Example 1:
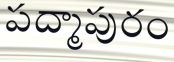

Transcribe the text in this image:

పద్మాపురం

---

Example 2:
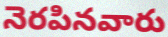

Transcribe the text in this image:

నెరపినవారు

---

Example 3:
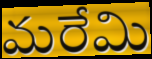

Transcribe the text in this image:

మరేమి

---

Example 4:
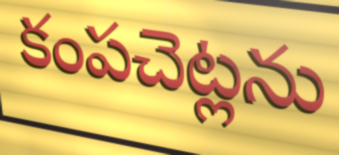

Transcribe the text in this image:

కంపచెట్లను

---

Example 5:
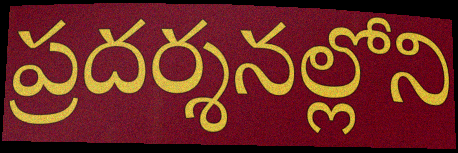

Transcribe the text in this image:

ప్రదర్శనల్లోని